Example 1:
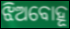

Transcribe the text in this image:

ଝିଅବୋହୂ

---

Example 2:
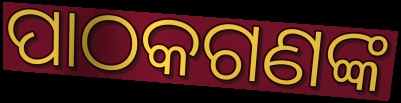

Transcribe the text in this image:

ପାଠକଗଣଙ୍କ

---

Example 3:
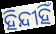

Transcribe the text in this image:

ହିନ୍ଦୀହିଁ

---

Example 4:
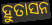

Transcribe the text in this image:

ହୁତାସନ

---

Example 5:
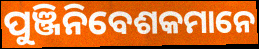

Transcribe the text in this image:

ପୁଞ୍ଜିନିବେଶକମାନେ